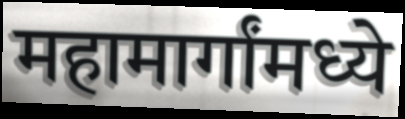
महामार्गांमध्ये